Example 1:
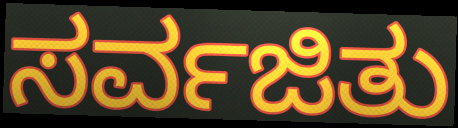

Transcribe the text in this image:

ಸರ್ವಜಿತು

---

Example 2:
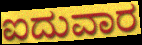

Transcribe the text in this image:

ಐದುವಾರ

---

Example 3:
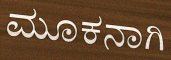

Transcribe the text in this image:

ಮೂಕನಾಗಿ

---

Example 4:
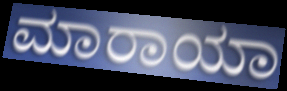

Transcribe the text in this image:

ಮಾರಾಯಾ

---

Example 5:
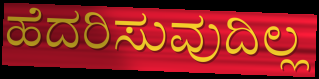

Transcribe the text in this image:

ಹೆದರಿಸುವುದಿಲ್ಲ